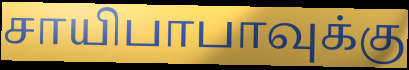
சாயிபாபாவுக்கு